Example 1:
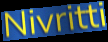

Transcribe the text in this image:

Nivritti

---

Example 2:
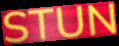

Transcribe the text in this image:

STUN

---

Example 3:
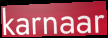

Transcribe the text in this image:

karnaar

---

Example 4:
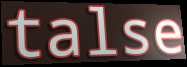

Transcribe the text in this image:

talse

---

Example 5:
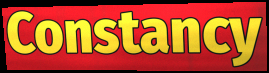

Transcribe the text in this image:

Constancy